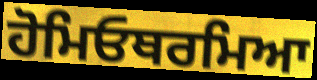
ਹੋਮਿਓਥਰਮਿਆ